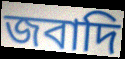
জবাদি